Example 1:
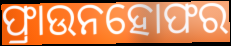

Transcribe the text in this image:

ଫ୍ରାଉନହୋଫର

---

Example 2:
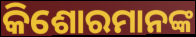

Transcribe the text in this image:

କିଶୋରମାନଙ୍କ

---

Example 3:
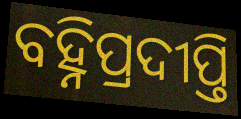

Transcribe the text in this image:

ବହ୍ନିପ୍ରଦୀପ୍ତି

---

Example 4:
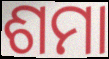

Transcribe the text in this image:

ଶମା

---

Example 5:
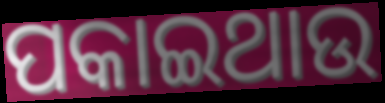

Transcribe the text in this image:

ପକାଇଥାଉ